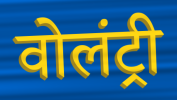
वोलंट्री